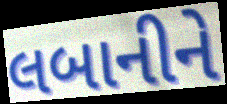
લબાનીને